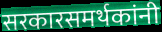
सरकारसमर्थकांनी